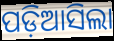
ପଡ଼ିଆସିଲା